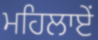
ਮਹਿਲਾਏਂ